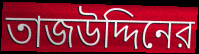
তাজউদ্দিনের